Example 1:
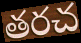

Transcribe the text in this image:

తరచ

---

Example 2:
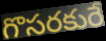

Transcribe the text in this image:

గొసరకురే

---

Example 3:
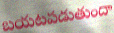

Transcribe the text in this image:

బయటపడుతుందా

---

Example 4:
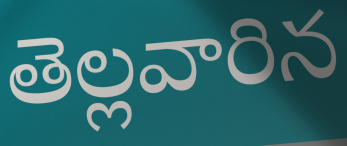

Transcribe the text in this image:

తెల్లవారిన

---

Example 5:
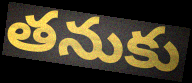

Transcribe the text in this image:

తనుకు